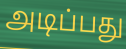
அடிப்பது